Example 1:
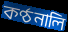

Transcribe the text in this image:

কণ্ঠনালি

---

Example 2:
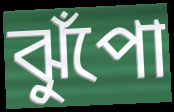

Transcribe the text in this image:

ঝুঁপো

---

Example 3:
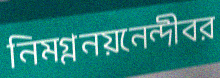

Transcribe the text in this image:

নিমগ্ননয়নেন্দীবর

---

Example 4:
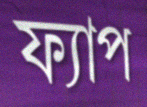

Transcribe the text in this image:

ফ্যাপ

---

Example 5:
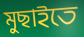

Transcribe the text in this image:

মুছাইতে